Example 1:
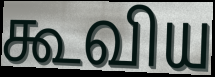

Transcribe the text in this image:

கூவிய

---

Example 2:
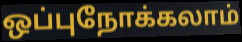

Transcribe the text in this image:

ஒப்புநோக்கலாம்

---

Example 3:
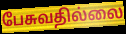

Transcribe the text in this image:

பேசுவதில்லை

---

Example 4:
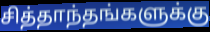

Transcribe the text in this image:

சித்தாந்தங்களுக்கு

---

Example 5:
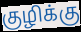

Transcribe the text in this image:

குழிக்கு